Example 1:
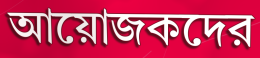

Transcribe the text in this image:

আয়োজকদের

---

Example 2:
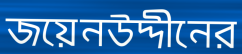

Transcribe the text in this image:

জয়েনউদ্দীনের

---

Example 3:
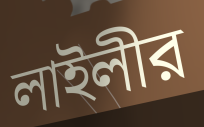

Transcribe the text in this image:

লাইলীর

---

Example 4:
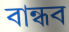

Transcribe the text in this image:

বান্ধব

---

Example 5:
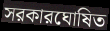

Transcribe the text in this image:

সরকারঘোষিত